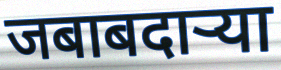
जबाबदाऱ्या